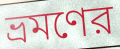
ভ্রমণের